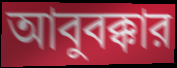
আবুবক্কার